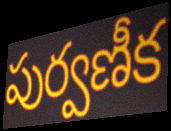
పుర్వణీక